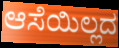
ಆಸೆಯಿಲ್ಲದ